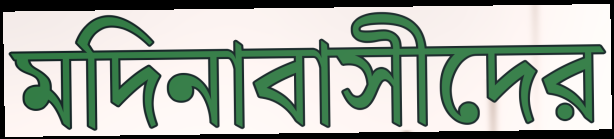
মদিনাবাসীদের